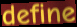
define